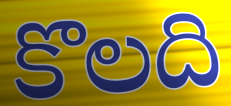
కొలది